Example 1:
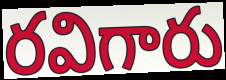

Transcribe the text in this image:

రవిగారు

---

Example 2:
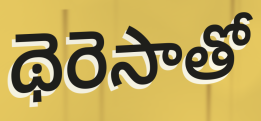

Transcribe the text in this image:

థెరెసాతో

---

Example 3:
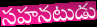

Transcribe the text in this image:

సహనటుడు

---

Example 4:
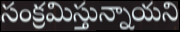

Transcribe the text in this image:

సంక్రమిస్తున్నాయని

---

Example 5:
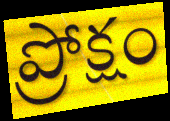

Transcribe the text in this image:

ప్రోక్షం